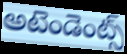
అటెండెంట్స్